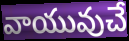
వాయువుచే